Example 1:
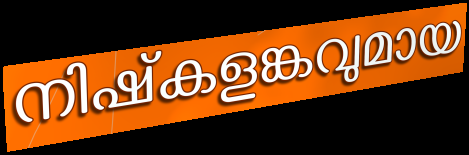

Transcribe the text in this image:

നിഷ്‌കളങ്കവുമായ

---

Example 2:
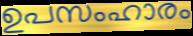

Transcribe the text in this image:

ഉപസംഹാരം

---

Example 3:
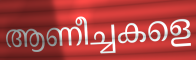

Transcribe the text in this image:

ആണീച്ചകളെ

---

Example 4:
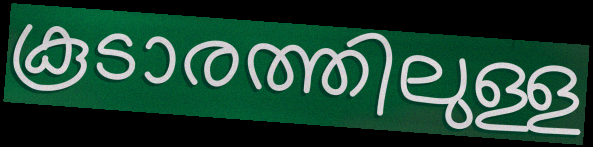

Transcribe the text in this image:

കൂടാരത്തിലുള്ള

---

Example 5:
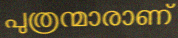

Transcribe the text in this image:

പുത്രന്മാരാണ്